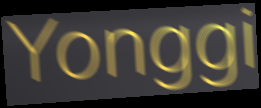
Yonggi